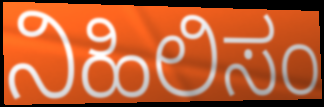
ನಿಹಿಲಿಸಂ